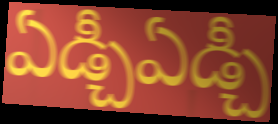
ఏడ్చీఏడ్చీ